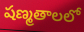
షణ్మతాలలో